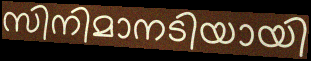
സിനിമാനടിയായി